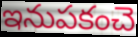
ఇనుపకంచె